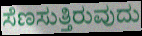
ಸೆಣಸುತ್ತಿರುವುದು